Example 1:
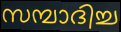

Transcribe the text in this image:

സമ്പാദിച്ച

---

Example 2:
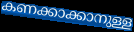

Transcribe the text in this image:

കണക്കാക്കാനുള്ള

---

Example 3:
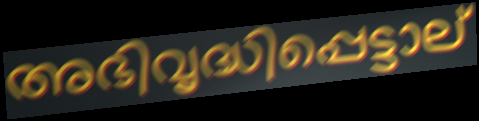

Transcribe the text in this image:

അഭിവൃദ്ധിപ്പെട്ടാല്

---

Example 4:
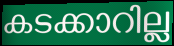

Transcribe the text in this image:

കടക്കാറില്ല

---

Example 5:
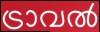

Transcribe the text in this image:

ട്രാവൽ